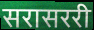
सरासररी